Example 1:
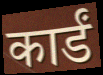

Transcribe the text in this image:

कार्डं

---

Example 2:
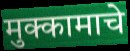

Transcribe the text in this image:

मुक्कामाचे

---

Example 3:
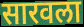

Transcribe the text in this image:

सारवला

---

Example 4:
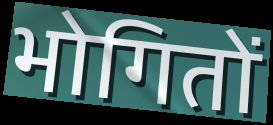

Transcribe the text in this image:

भोगितों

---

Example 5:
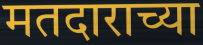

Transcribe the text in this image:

मतदाराच्या